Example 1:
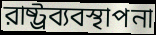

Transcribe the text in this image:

রাষ্ট্রব্যবস্থাপনা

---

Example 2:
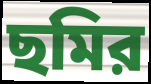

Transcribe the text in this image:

ছমির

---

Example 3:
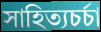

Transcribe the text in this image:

সাহিত্যচর্চা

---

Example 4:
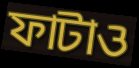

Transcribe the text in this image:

ফাটাও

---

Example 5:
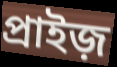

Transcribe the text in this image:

প্রাইজ়